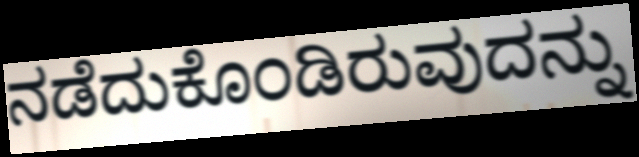
ನಡೆದುಕೊಂಡಿರುವುದನ್ನು